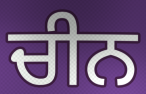
ਚੀਨ